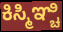
ಕಿಸ್ಮಿಞ್ಚಿ